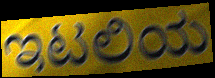
ಇಟಲಿಯ